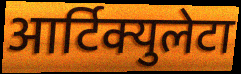
आर्टिक्युलेटा